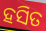
ହସିତ